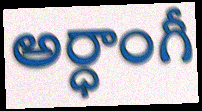
అర్ధాంగీ